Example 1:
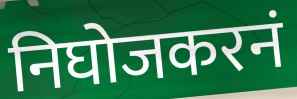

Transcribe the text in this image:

निघोजकरनं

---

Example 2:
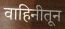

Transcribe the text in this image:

वाहिनीतून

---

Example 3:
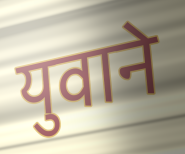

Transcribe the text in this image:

युवाने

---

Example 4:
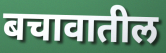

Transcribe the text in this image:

बचावातील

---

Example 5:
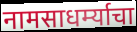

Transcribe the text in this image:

नामसाधर्म्याचा